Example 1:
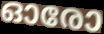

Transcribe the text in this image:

ഓരോ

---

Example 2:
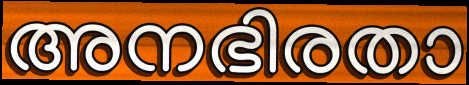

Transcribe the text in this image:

അനഭിരതാ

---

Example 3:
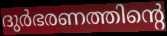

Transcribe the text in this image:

ദുർഭരണത്തിന്റെ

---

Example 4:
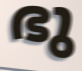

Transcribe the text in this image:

ഭു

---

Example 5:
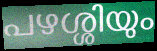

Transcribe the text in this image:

പഴശ്ശിയും